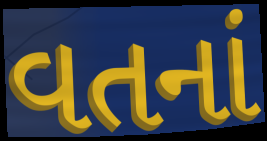
વતનાં